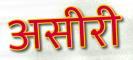
असीरी